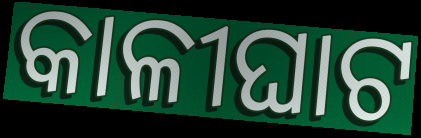
କାଳୀଘାଟ